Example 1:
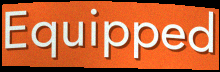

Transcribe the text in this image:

Equipped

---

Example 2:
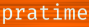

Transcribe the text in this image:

pratime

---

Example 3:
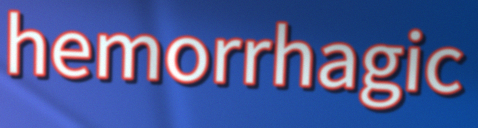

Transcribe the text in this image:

hemorrhagic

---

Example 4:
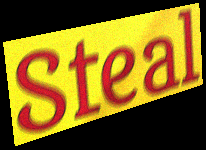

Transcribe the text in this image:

Steal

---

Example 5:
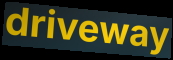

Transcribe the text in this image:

driveway